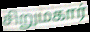
சிறுமகார்